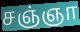
சஞ்ஞா